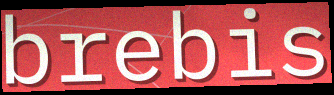
brebis